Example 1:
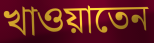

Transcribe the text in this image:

খাওয়াতেন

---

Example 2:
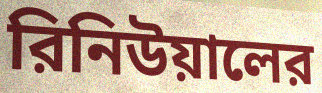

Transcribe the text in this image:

রিনিউয়ালের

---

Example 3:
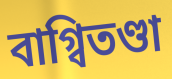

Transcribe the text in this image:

বাগ্বিতণ্ডা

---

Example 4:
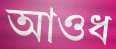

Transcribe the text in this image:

আওধ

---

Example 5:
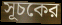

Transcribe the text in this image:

সূচকের